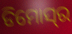
ଡିମୋସ୍‌ର